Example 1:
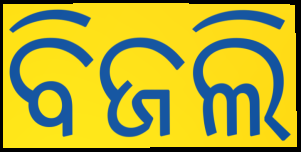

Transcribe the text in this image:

ବିଜଲି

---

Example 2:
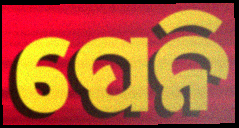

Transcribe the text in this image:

ପେନି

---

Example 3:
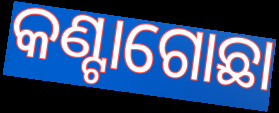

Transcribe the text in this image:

କଣ୍ଟାଗୋଛା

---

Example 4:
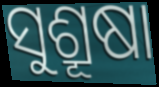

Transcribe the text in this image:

ସୁଶ୍ରୂଷା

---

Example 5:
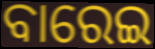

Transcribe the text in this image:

ବାରେଇ